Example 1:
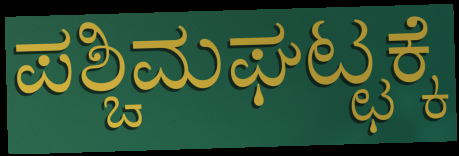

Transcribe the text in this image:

ಪಶ್ಚಿಮಘಟ್ಟಕ್ಕೆ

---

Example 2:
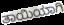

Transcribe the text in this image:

ತಾಯಿಯಾಗಿ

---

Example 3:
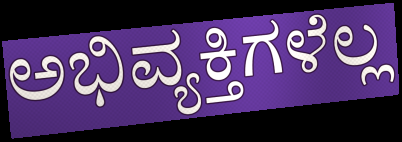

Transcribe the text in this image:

ಅಭಿವ್ಯಕ್ತಿಗಳೆಲ್ಲ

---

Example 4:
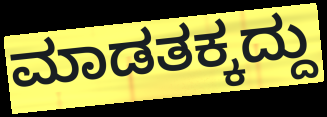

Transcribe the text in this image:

ಮಾಡತಕ್ಕದ್ದು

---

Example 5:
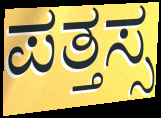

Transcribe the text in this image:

ಪತ್ತಸ್ಸ